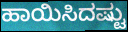
ಹಾಯಿಸಿದಷ್ಟು